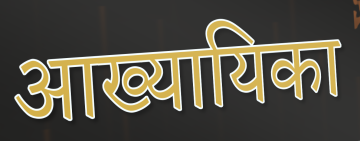
आख्यायिका